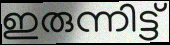
ഇരുന്നിട്ട്